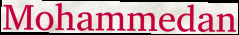
Mohammedan